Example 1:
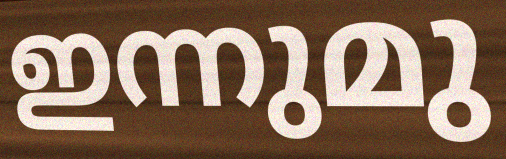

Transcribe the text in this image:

ഇന്നുമു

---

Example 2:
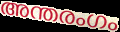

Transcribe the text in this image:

അന്തരംഗം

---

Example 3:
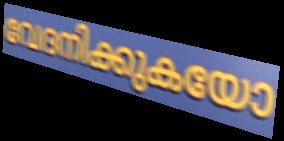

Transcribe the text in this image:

വേദനിക്കുകയോ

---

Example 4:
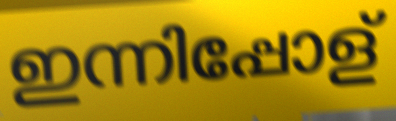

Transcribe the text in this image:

ഇന്നിപ്പോള്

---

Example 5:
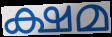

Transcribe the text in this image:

ക്ഷമ